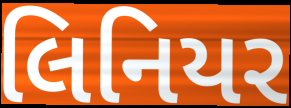
લિનિયર